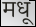
मधू